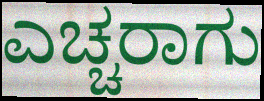
ಎಚ್ಚರಾಗು